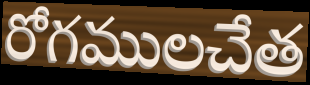
రోగములచేత